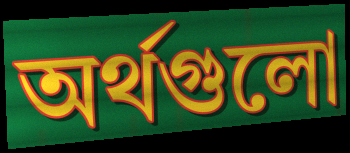
অর্থগুলো